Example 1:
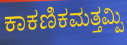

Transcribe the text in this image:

ಕಾಕಣಿಕಮತ್ತಮ್ಪಿ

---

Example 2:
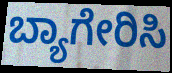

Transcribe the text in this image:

ಬ್ಯಾಗೇರಿಸಿ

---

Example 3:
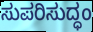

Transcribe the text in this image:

ಸುಪರಿಸುದ್ಧಂ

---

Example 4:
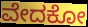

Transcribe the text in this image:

ವೇದಕೋ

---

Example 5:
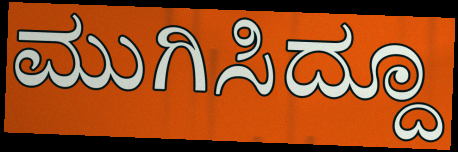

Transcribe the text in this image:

ಮುಗಿಸಿದ್ದೂ